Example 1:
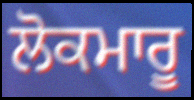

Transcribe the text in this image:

ਲੋਕਮਾਰੂ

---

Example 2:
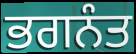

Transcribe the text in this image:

ਭਗਨੰਤ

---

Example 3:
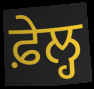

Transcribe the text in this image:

ਫ਼ੇਲ੍ਹ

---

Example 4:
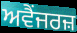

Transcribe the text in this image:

ਅਵੈਂਜਰਜ਼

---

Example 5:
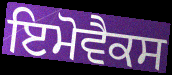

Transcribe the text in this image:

ਇਮੋਵੈਕਸ